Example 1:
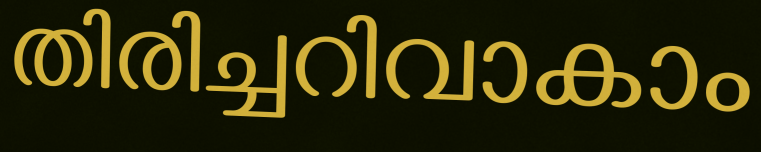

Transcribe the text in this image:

തിരിച്ചറിവാകാം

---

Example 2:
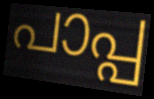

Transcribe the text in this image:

പാപ്പ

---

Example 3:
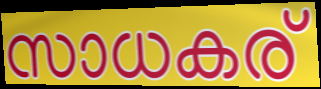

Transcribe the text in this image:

സാധകര്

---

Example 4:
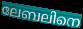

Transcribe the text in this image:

ലേബലിനെ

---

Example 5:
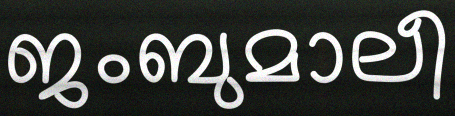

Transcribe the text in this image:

ജംബുമാലീ